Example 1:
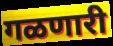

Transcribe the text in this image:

गळणारी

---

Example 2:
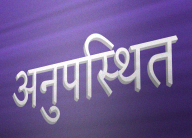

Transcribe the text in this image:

अनुपस्थित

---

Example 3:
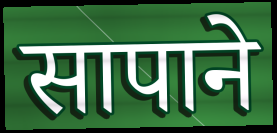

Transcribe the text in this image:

सापाने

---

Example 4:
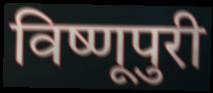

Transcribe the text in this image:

विष्णूपुरी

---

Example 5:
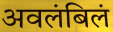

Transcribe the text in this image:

अवलंबिलं